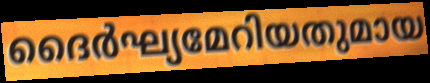
ദൈർഘ്യമേറിയതുമായ